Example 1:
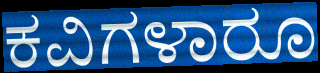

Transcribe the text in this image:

ಕವಿಗಳಾರೂ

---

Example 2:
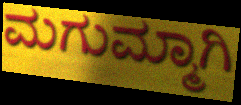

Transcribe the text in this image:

ಮಗುಮ್ಮಾಗಿ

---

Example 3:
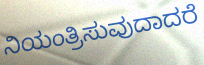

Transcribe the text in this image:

ನಿಯಂತ್ರಿಸುವುದಾದರೆ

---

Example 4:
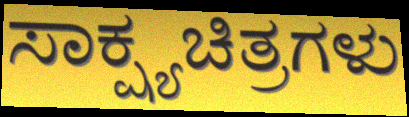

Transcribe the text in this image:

ಸಾಕ್ಷ್ಯಚಿತ್ರಗಳು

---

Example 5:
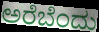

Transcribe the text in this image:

ಅರೆಬೆಂದು